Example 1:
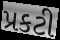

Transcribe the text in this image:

પ્રકટી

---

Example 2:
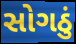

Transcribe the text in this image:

સોગઠું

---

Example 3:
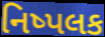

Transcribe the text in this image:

નિષ્પલક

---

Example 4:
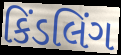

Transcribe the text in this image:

કિંડલિંગ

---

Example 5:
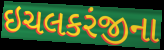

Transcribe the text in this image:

ઇચલકરંજીના